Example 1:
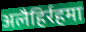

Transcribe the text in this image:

अलैहिर्रहमा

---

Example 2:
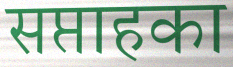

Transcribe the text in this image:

सप्ताहका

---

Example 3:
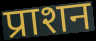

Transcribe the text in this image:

प्राशन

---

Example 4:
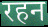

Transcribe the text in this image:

रहन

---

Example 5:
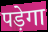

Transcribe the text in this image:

पड़ेगा